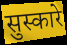
सुस्कारे